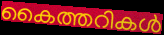
കൈത്തറികൾ